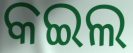
କଇଲ